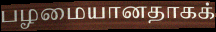
பழமையானதாகக்